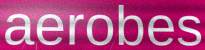
aerobes